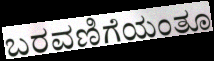
ಬರವಣಿಗೆಯಂತೂ